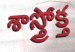
శాస్త్రోక్త